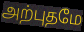
அற்புதமே